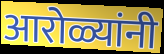
आरोळ्यांनी